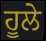
ਹੂਲੇ